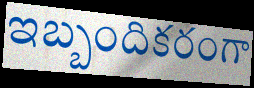
ఇబ్బందికరంగా